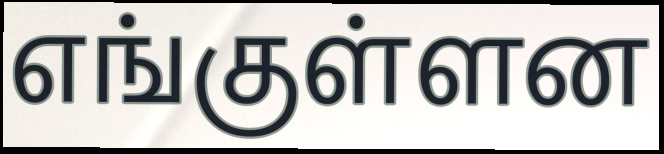
எங்குள்ளன